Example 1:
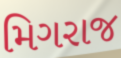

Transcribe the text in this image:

મિગરાજ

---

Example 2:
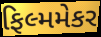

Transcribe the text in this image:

ફિલ્મમેકર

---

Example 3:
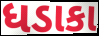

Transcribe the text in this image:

ધડાકા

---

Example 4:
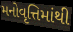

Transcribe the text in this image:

મનોવૃત્તિમાંથી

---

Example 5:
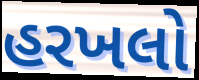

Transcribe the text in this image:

હરખલો